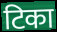
टिका